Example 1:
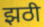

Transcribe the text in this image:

झठी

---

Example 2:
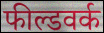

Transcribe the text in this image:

फील्डवर्क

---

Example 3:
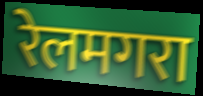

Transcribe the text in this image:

रेलमगरा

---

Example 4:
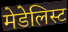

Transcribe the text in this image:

मेडेलिस्ट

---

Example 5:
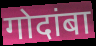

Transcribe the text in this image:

गोदांबा